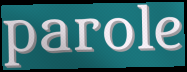
parole